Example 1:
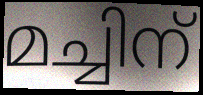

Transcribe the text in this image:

മച്ചിന്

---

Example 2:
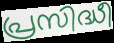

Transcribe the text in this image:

പ്രസിദ്ധീ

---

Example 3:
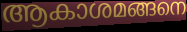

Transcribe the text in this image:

ആകാശമങ്ങനെ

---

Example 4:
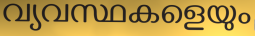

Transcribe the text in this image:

വ്യവസ്ഥകളെയും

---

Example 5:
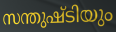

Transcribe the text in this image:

സന്തുഷ്ടിയും